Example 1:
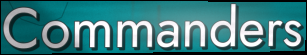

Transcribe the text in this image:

Commanders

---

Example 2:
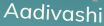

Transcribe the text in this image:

Aadivashi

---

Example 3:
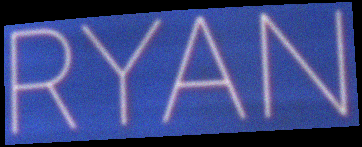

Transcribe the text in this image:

RYAN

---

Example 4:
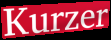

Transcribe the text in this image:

Kurzer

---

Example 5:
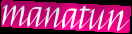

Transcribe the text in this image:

manatun